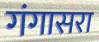
गंगासरा